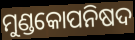
ମୁଣ୍ଡକୋପନିଷଦ